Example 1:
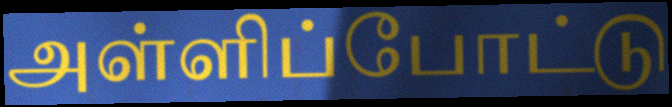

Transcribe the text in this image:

அள்ளிப்போட்டு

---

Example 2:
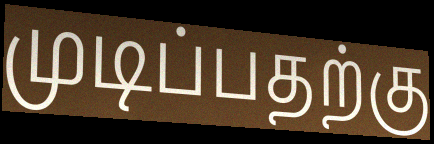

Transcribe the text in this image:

முடிப்பதற்கு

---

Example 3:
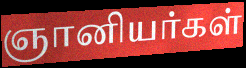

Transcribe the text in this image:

ஞானியர்கள்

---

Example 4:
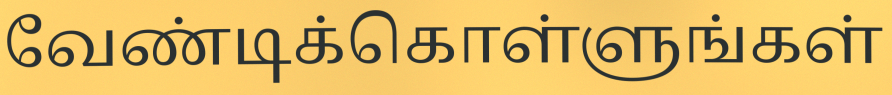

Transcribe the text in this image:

வேண்டிக்கொள்ளுங்கள்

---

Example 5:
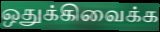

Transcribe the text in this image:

ஒதுக்கிவைக்க